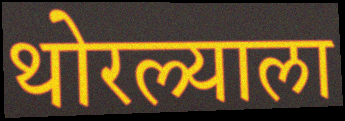
थोरल्याला